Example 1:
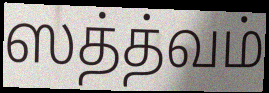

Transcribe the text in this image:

ஸத்த்வம்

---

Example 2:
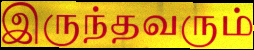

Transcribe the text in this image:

இருந்தவரும்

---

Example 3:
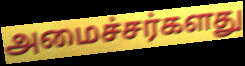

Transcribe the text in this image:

அமைச்சர்களது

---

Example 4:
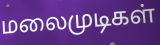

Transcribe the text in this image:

மலைமுடிகள்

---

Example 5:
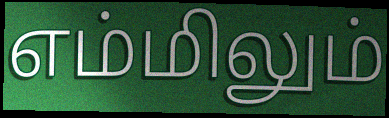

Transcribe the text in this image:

எம்மிலும்